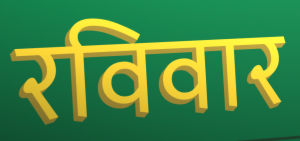
रविवार